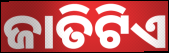
ଜାତିଟିଏ